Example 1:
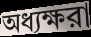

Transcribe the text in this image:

অধ্যক্ষরা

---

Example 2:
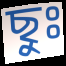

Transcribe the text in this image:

ছুঃ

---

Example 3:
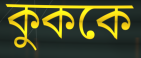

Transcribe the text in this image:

কুককে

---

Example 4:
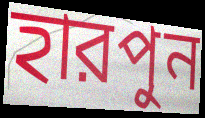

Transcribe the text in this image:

হারপুন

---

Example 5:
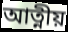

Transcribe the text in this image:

আত্নীয়